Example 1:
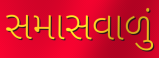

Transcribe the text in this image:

સમાસવાળું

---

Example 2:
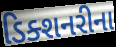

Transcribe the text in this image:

ડિક્શનરીના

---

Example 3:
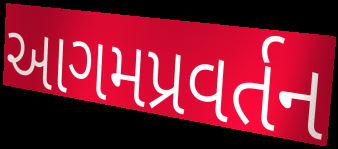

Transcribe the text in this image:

આગમપ્રવર્તન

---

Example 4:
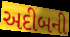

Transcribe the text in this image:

અદીબની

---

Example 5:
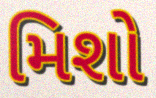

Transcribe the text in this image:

મિશો